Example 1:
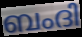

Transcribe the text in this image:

ബംദി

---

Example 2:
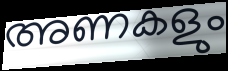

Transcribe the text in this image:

അണകളും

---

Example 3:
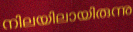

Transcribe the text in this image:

നിലയിലായിരുന്നു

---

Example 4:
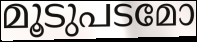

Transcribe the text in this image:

മൂടുപടമോ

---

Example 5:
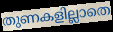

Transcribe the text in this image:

തുണകളില്ലാതെ